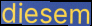
diesem